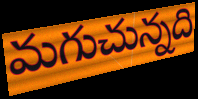
మగుచున్నది